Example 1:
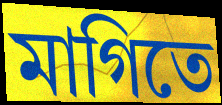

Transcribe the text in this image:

মাগিতে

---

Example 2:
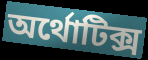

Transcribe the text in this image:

অর্থোটিক্স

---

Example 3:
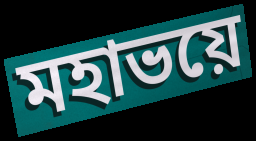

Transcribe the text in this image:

মহাভয়ে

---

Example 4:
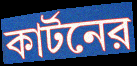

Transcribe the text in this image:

কার্টনের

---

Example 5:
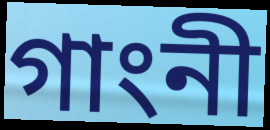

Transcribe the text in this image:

গাংনী